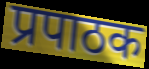
प्रपाठक